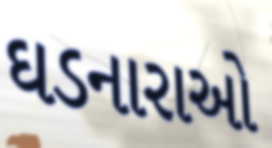
ઘડનારાઓ